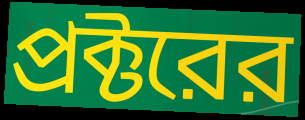
প্রক্টরের